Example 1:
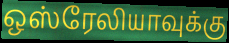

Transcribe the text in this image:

ஒஸ்ரேலியாவுக்கு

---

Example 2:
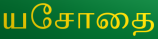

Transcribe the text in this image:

யசோதை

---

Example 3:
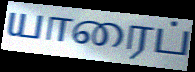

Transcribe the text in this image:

யாரைப்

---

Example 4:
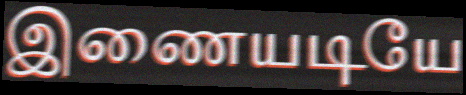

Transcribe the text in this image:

இணையடியே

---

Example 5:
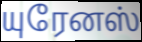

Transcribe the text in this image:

யுரேனஸ்